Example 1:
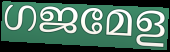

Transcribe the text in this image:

ഗജമേള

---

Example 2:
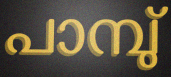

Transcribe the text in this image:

പാമ്പു്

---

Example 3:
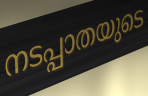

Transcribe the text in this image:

നടപ്പാതയുടെ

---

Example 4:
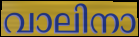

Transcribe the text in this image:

വാലിനാ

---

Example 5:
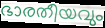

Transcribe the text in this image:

ഭാരതീയവും